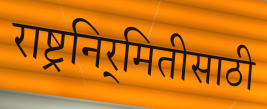
राष्ट्रनिर्मितीसाठी